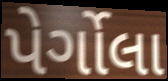
પેર્ગોલા